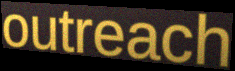
outreach